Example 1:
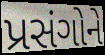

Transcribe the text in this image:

પ્રસંગોને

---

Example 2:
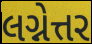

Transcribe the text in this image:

લગ્નેત્તર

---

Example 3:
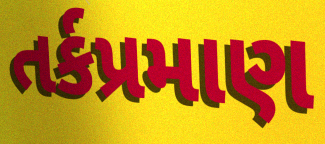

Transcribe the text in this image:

તર્કપ્રમાણ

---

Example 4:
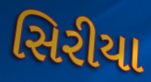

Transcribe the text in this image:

સિરીયા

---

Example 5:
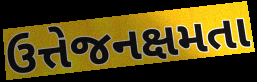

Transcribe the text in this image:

ઉત્તેજનક્ષમતા